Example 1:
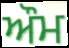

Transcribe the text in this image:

ਔਮ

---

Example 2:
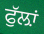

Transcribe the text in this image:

ਫੁੱਲ਼ਾਂ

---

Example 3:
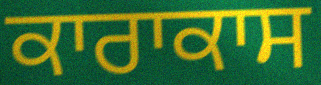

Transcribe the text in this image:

ਕਾਰਾਕਾਸ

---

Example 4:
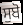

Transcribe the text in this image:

ਸੁਬੋ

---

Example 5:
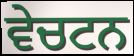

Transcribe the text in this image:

ਵੇਚਟਨ